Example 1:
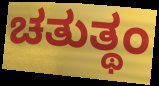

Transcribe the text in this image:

ಚತುತ್ಥಂ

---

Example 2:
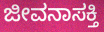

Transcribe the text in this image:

ಜೀವನಾಸಕ್ತಿ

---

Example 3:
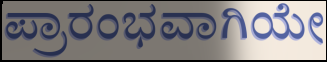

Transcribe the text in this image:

ಪ್ರಾರಂಭವಾಗಿಯೇ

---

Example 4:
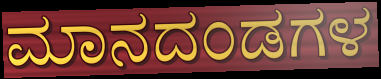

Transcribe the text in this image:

ಮಾನದಂಡಗಳ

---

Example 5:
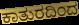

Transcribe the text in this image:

ಕಾತುರದಿಂದ